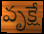
వృక్షే